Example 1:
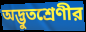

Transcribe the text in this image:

অদ্ভুতশ্রেণীর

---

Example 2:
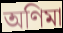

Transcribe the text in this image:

অণিমা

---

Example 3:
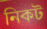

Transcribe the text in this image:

নিকট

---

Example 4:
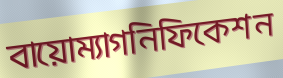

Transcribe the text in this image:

বায়োম্যাগনিফিকেশন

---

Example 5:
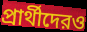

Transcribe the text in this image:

প্রার্থীদেরও